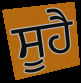
ਸੂਹੈ